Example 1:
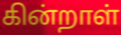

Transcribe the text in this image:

கின்றாள்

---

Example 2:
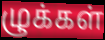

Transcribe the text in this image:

ழுக்கள்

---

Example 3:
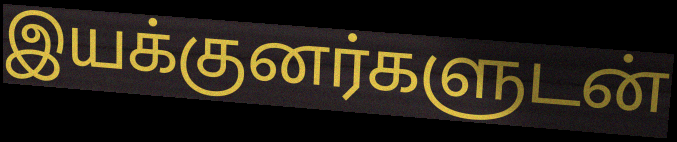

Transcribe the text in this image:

இயக்குனர்களுடன்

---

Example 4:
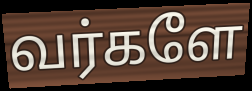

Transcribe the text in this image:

வர்களே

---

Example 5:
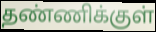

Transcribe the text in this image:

தண்ணிக்குள்